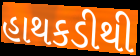
હાથકડીથી